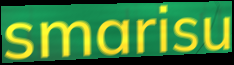
smarisu